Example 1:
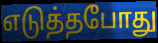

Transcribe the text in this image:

எடுத்தபோது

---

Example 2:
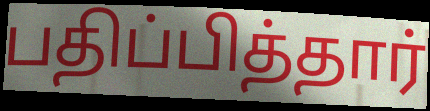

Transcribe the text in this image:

பதிப்பித்தார்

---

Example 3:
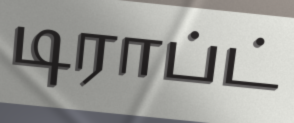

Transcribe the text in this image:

டிராப்ட்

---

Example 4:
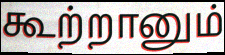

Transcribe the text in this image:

கூற்றானும்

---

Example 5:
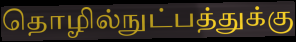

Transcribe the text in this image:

தொழில்நுட்பத்துக்கு